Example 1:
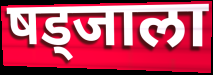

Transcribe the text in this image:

षड्जाला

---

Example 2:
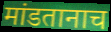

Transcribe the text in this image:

मांडतानाच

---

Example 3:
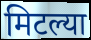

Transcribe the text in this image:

मिटल्या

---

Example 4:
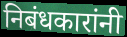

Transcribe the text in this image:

निबंधकारांनी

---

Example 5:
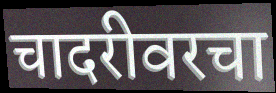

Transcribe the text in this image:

चादरीवरचा